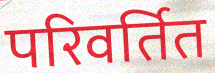
परिवर्तित